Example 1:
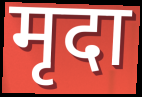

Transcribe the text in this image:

मृदा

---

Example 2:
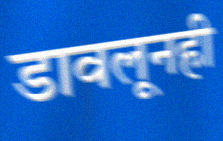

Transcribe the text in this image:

डावलूनही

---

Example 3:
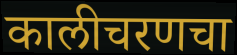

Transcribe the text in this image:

कालीचरणचा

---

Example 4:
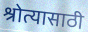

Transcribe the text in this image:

श्रोत्यासाठी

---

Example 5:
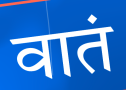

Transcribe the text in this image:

वातं